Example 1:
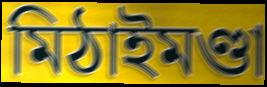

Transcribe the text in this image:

মিঠাইমণ্ডা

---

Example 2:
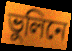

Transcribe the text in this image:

ভুলিনে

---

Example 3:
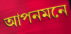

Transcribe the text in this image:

আপনমনে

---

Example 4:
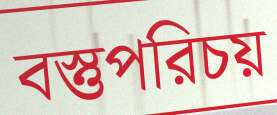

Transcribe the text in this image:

বস্তুপরিচয়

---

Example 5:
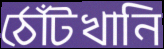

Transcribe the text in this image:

ঠোঁটখানি